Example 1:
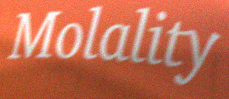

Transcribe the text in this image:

Molality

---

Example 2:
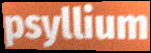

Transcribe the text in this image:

psyllium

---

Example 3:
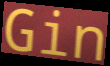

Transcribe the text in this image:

Gin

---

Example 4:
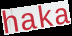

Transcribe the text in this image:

haka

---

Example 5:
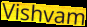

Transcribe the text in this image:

Vishvam